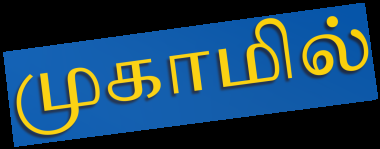
முகாமில்